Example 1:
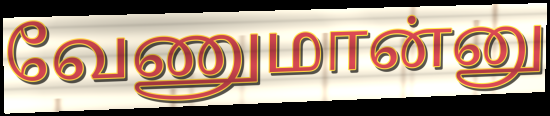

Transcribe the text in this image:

வேணுமான்னு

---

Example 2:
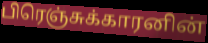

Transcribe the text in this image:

பிரெஞ்சுக்காரனின்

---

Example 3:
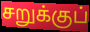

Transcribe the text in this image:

சறுக்குப்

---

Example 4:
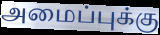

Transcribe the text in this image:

அமைப்புக்கு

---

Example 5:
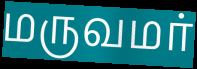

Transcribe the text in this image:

மருவமர்